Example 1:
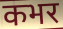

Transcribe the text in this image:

कभर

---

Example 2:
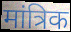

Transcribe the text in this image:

मांत्रिक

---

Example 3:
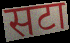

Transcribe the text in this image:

सटा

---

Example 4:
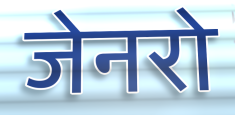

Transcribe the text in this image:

जेनरो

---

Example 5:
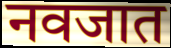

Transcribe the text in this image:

नवजात